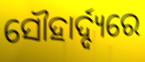
ସୌହାର୍ଦ୍ଦ୍ୟରେ